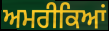
ਅਮਰੀਕਿਆਂ